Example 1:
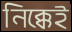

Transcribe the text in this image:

নিক্কেই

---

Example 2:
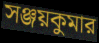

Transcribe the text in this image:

সঞ্জয়কুমার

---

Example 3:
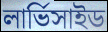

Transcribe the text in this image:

লার্ভিসাইড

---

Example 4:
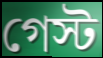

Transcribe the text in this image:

গেস্ট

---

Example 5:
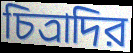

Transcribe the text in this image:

চিত্রাদির